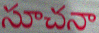
సూచనా